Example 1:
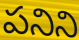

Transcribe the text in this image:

పనిని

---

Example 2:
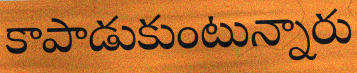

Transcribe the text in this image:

కాపాడుకుంటున్నారు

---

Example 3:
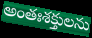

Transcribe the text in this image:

అంతఃశక్తులను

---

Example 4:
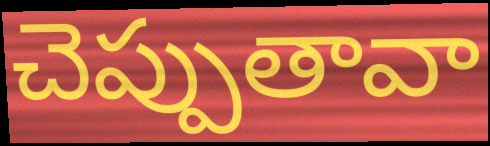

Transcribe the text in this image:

చెప్పుతావా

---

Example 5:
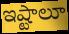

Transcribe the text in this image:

ఇష్టాలూ